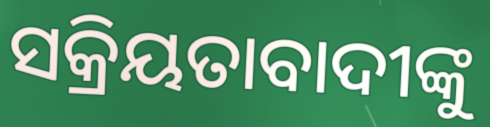
ସକ୍ରିୟତାବାଦୀଙ୍କୁ